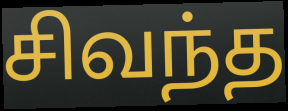
சிவந்த